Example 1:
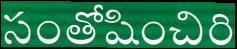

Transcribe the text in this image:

సంతోషించిరి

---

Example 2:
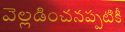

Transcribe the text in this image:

వెల్లడించనప్పటికీ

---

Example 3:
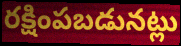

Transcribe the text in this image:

రక్షింపబడునట్లు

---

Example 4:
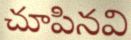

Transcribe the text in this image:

చూపినవి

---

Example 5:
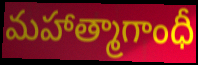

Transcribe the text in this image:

మహాత్మాగాంధీ